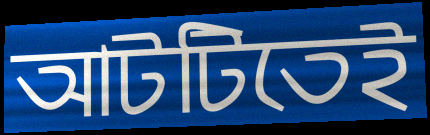
আটটিতেই